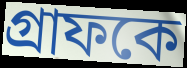
গ্রাফকে